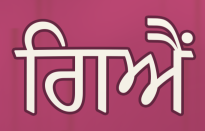
ਗਿਐਂ